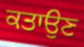
ਕਤਾਉਣ